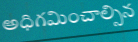
అధిగమించాల్సిన